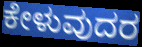
ಕೇಳುವುದರ